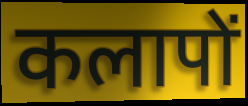
कलापों